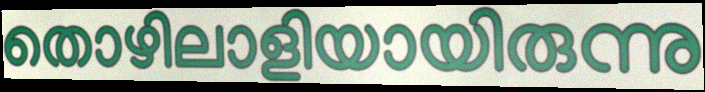
തൊഴിലാളിയായിരുന്നു